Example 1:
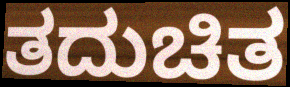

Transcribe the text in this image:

ತದುಚಿತ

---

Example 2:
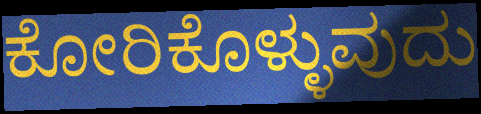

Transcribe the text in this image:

ಕೋರಿಕೊಳ್ಳುವುದು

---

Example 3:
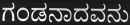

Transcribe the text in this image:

ಗಂಡನಾದವನು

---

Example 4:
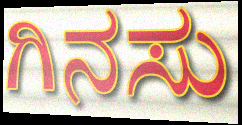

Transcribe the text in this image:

ಗಿನಸು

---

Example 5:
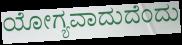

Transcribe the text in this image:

ಯೋಗ್ಯವಾದುದೆಂದು